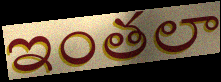
ఇంతలా